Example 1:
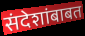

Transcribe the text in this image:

संदेशांबाबत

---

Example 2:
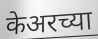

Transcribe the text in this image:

केअरच्या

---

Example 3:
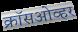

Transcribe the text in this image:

क्रॉसओव्हर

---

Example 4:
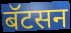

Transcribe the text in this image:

बॅटसन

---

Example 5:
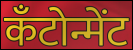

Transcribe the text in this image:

कँटोन्मेंट